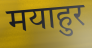
मयाहुर